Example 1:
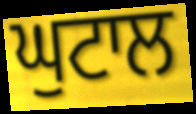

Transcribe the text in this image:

ਘੁਟਾਲ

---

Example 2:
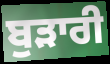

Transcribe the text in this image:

ਬੁੜਾਰੀ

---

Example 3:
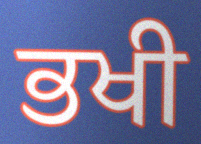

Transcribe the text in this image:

ਭਖੀ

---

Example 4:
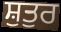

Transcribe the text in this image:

ਸ਼ੁਤੁਰ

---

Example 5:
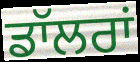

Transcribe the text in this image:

ਡਾੱਲਰਾਂ